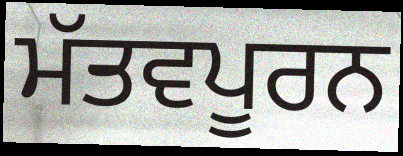
ਮੱਤਵਪੂਰਨ